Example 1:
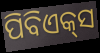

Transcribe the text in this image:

ପିବିଏକ୍‌ସ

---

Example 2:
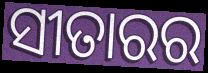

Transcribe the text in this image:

ସୀତାରର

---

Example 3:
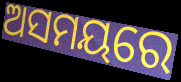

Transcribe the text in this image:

ଅସମୟରେ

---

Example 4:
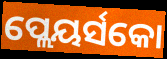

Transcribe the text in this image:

ପ୍ଲେୟର୍ସକୋ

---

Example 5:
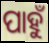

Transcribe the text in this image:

ପାହୁଁ